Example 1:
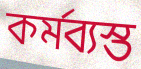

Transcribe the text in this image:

কর্মব্যস্ত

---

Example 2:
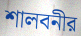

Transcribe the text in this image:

শালবনীর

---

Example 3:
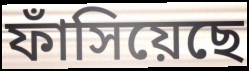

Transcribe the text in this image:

ফাঁসিয়েছে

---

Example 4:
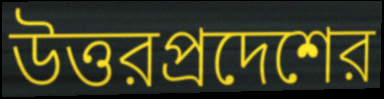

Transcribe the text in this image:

উত্তরপ্রদেশের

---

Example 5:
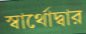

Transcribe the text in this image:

স্বার্থোদ্বার